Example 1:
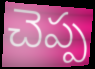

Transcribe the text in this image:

చెప్ప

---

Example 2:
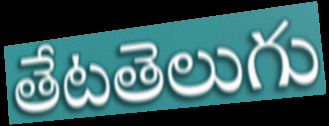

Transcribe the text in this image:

తేటతెలుగు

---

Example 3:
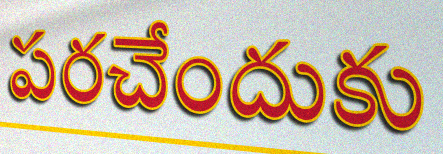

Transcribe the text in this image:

పరచేందుకు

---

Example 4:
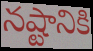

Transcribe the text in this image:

నష్టానికి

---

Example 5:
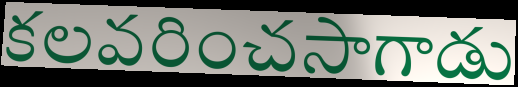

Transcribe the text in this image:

కలవరించసాగాడు